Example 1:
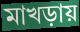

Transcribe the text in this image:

মাখড়ায়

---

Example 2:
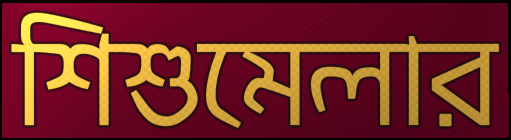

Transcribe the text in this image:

শিশুমেলার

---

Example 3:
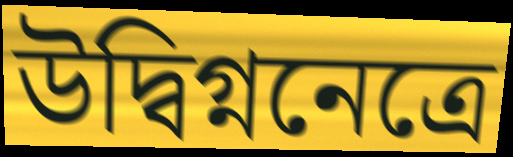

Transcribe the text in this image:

উদ্বিগ্ননেত্রে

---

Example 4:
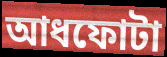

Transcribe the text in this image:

আধফোটা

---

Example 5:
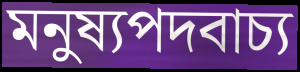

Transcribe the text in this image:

মনুষ্যপদবাচ্য